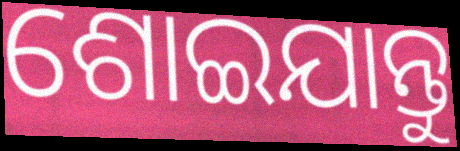
ଶୋଇଯାନ୍ତୁ